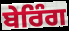
ਬੇਰਿੰਗ